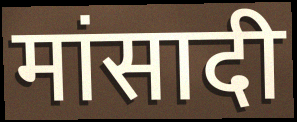
मांसादी